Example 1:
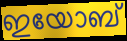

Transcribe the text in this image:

ഇയോബ്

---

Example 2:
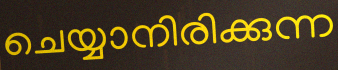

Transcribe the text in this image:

ചെയ്യാനിരിക്കുന്ന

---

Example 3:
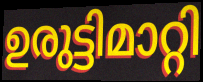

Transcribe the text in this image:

ഉരുട്ടിമാറ്റി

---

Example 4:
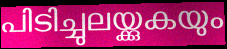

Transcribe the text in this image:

പിടിച്ചുലയ്ക്കുകയും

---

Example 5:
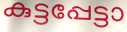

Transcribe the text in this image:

കുട്ടപ്പേട്ടാ